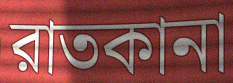
রাতকানা